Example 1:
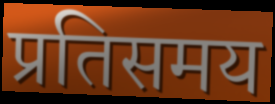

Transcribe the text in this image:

प्रतिसमय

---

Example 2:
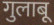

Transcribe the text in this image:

गुलाबू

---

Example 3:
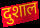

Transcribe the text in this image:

दुशाल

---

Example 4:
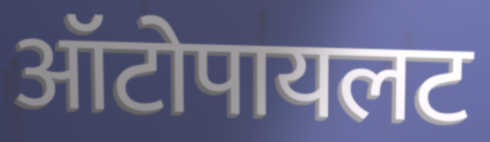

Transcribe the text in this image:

ऑटोपायलट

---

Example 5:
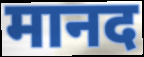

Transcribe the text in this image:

मानद